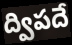
ద్విపదే